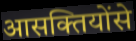
आसक्तियोंसे